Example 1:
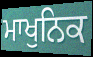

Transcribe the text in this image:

ਮਾਖੁਨਿਕ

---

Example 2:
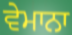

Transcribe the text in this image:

ਵੇਮਾਨਾ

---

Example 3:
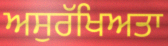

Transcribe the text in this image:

ਅਸੁਰੱਖਿਅਤਾ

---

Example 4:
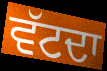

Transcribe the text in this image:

ਵੱਟਦਾ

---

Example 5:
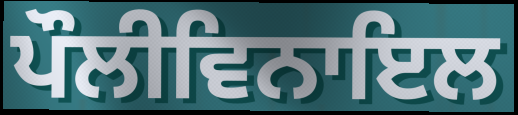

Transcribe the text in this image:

ਪੌਲੀਵਿਨਾਇਲ